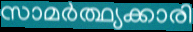
സാമർത്ഥ്യക്കാരി